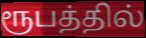
ரூபத்தில்